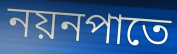
নয়নপাতে